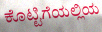
ಕೊಟ್ಟಿಗೆಯಲ್ಲಿಯ